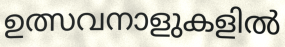
ഉത്സവനാളുകളിൽ